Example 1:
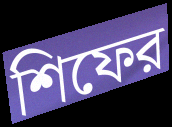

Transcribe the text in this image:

শিফের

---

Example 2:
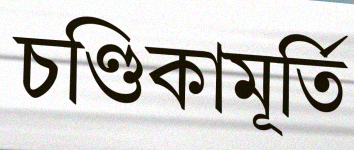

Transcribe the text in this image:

চণ্ডিকামূর্তি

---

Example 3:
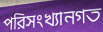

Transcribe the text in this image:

পরিসংখ্যানগত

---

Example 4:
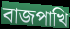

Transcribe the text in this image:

বাজপাখি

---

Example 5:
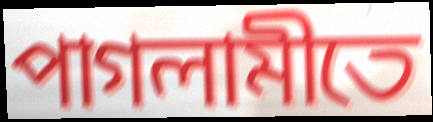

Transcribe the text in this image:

পাগলামীতে